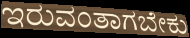
ಇರುವಂತಾಗಬೇಕು